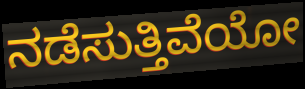
ನಡೆಸುತ್ತಿವೆಯೋ